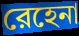
রেহেনা